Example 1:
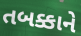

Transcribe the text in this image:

તબક્કાને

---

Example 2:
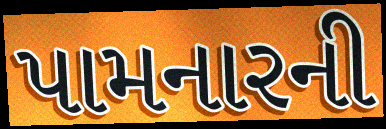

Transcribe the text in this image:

પામનારની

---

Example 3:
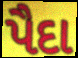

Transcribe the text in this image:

પૈદા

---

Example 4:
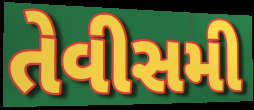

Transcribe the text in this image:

તેવીસમી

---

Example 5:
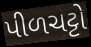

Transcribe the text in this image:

પીળચટ્ટો